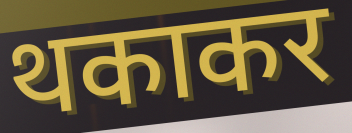
थकाकर